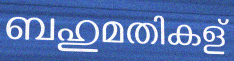
ബഹുമതികള്